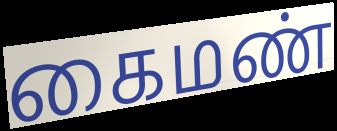
கைமண்